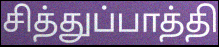
சித்துப்பாத்தி